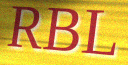
RBL